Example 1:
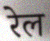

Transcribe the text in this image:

रेल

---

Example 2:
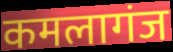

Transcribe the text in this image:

कमलागंज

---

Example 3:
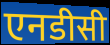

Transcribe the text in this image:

एनडीसी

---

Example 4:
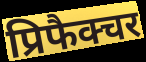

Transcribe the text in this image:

प्रिफैक्चर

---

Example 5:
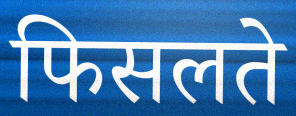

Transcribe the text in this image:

फिसलते